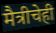
मैत्रीचेही